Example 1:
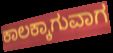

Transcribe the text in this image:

ಕಾಲಕ್ಕಾಗುವಾಗ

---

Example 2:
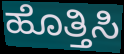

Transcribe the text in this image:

ಹೊತ್ತಿಸಿ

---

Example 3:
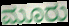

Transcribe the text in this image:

ಮೂರು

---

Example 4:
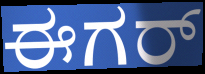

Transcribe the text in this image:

ಈಗರ್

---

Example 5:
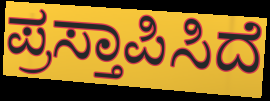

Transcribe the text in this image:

ಪ್ರಸ್ತಾಪಿಸಿದೆ